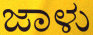
ಜಾಳು